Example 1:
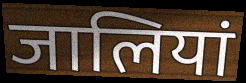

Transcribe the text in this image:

जालियां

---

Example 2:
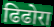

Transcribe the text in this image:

ढिढोरा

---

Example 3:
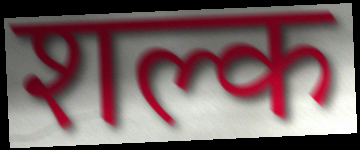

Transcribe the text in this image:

शल्क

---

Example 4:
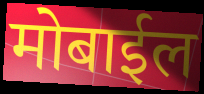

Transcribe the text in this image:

मोबाईल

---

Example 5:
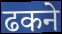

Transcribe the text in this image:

ढकने